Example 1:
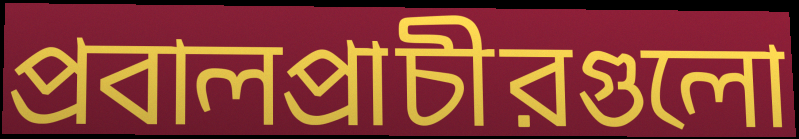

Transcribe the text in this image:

প্রবালপ্রাচীরগুলো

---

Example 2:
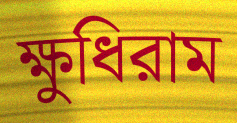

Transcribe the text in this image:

ক্ষুধিরাম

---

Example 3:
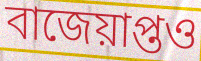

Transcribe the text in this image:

বাজেয়াপ্তও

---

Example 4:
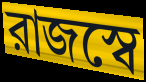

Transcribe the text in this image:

রাজস্বে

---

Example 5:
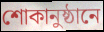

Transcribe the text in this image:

শোকানুষ্ঠানে